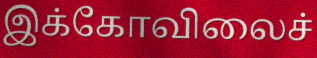
இக்கோவிலைச்